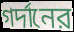
গর্দানের